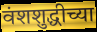
वंशशुद्धीच्या